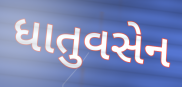
ધાતુવસેન